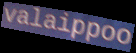
valaippoo